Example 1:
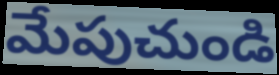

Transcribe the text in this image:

మేపుచుండి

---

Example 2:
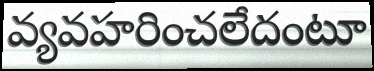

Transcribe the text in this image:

వ్యవహరించలేదంటూ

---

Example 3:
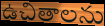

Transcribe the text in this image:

ఉచితాలను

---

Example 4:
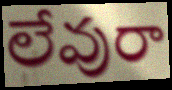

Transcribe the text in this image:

లేవురా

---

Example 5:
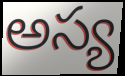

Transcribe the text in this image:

అస్య